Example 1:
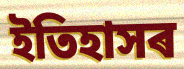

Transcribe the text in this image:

ইতিহাসৰ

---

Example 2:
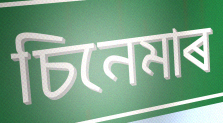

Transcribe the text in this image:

চিনেমাৰ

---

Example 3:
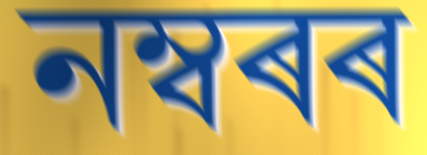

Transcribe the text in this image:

নম্বৰৰ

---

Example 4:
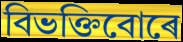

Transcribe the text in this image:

বিভক্তিবোৰে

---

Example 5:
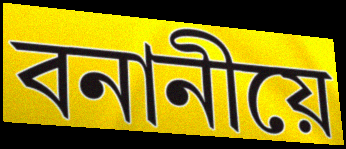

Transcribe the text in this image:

বনানীয়ে